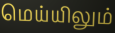
மெய்யிலும்